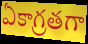
ఏకాగ్రతగా